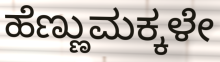
ಹೆಣ್ಣುಮಕ್ಕಳೇ